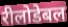
रीलोडेबल